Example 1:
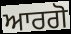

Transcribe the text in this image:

ਆਰਗੋ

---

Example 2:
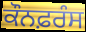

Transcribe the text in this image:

ਕੌਨਫ਼ਰੰਸ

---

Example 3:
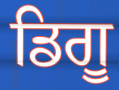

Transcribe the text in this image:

ਡਿਗੂ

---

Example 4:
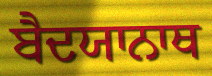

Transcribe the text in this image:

ਬੈਦਯਾਨਾਥ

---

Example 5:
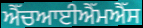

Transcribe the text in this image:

ਐੱਚਆਈਐੱਮਐੱਸ